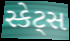
સ્કેટ્સ